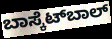
ಬಾಸ್ಕೆಟ್‍ಬಾಲ್